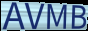
AVMB